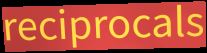
reciprocals